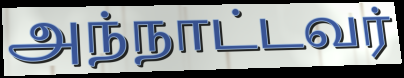
அந்நாட்டவர்